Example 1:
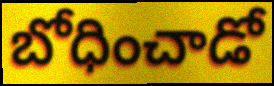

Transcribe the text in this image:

బోధించాడో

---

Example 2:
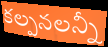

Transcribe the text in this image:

కల్పనలన్నీ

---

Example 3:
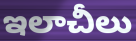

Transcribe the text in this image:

ఇలాచీలు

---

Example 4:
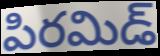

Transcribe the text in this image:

పిరమిడ్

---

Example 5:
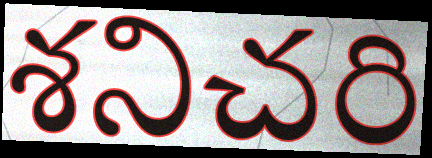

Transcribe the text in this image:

శనిచరి